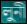
লুনী